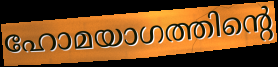
ഹോമയാഗത്തിന്റെ